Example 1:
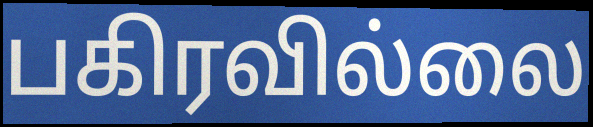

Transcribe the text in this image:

பகிரவில்லை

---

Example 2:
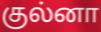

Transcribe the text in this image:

குல்னா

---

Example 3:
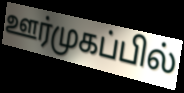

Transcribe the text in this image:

ஊர்முகப்பில்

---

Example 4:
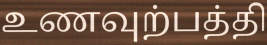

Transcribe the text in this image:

உணவுற்பத்தி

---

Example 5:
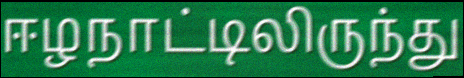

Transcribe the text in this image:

ஈழநாட்டிலிருந்து